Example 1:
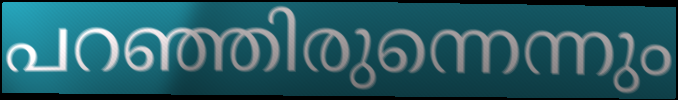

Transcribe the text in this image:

പറഞ്ഞിരുന്നെന്നും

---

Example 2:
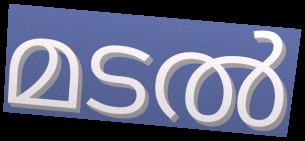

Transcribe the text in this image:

മടൽ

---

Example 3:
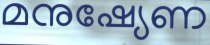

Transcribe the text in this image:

മനുഷ്യേണ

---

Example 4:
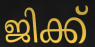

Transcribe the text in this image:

ജിക്ക്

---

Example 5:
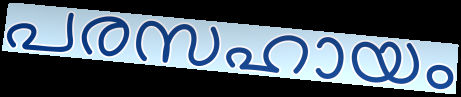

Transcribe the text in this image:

പരസഹായം